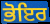
ਭੋਇਰ